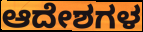
ಆದೇಶಗಳ